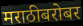
मराठीबरोबर